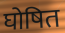
घोषित